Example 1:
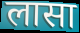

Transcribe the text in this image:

लासा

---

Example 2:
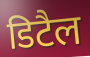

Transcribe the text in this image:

डिटैल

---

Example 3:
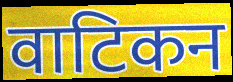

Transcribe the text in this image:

वाटिकन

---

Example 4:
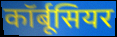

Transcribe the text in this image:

कॉर्बूसियर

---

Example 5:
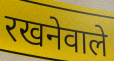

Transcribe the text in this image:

रखनेवाले